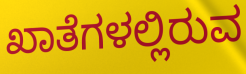
ಖಾತೆಗಳಲ್ಲಿರುವ